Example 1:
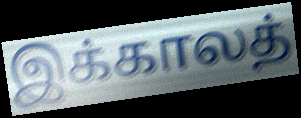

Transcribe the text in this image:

இக்காலத்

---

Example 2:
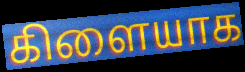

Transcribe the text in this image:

கிளையாக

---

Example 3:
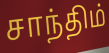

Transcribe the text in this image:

சாந்திம்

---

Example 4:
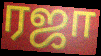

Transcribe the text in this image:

ரஜா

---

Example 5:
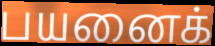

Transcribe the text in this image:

பயனைக்